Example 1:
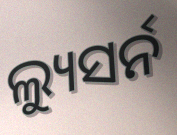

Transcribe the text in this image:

ଲ୍ୟୁସର୍ନ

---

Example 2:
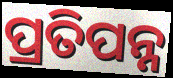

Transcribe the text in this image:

ପ୍ରତିପନ୍ନ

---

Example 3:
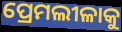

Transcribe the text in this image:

ପ୍ରେମଲୀଳାକୁ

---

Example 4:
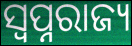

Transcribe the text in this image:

ସ୍ୱପ୍ନରାଜ୍ୟ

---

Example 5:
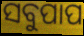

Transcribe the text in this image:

ସବୁପାପ